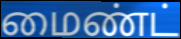
மைண்ட்